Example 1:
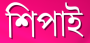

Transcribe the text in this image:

শিপাই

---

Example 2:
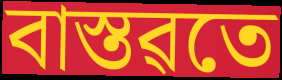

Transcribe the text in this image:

বাস্তৱতে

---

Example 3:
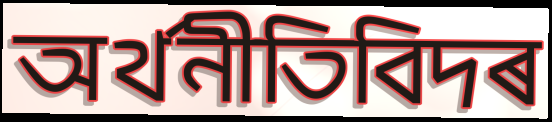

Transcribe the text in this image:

অৰ্থনীতিবিদৰ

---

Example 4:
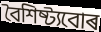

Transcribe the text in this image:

বৈশিষ্ট্যবোৰ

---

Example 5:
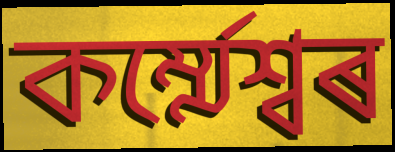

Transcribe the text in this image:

কৰ্ম্মেশ্বৰ